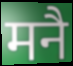
मनै